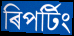
ৰিপৰ্টিং